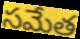
సమేత